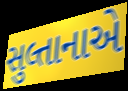
સુલ્તાનાએ